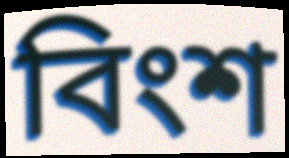
বিংশ